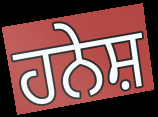
ਹਨੇਸ਼